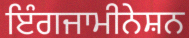
ਇੰਗਜਾਮੀਨੇਸ਼ਨ